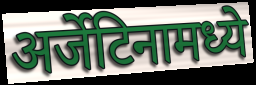
अर्जेटिनामध्ये